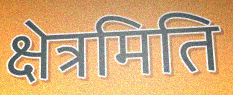
क्षेत्रमिति